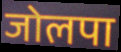
जोलपा